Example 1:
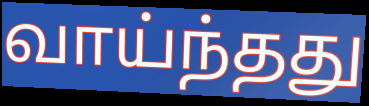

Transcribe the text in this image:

வாய்ந்தது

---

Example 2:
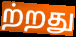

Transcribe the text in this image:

ற்றது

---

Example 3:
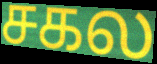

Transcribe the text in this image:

சகல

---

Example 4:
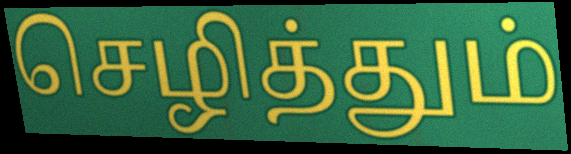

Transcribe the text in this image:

செழித்தும்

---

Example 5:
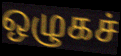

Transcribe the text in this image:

ஒழுகச்